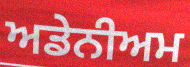
ਅਡੇਨੀਅਮ